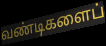
வண்டிகளைப்